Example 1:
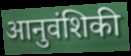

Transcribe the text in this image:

आनुवंशिकी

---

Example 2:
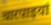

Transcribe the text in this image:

चारपाइयां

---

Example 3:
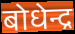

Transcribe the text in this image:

बोधेन्द्र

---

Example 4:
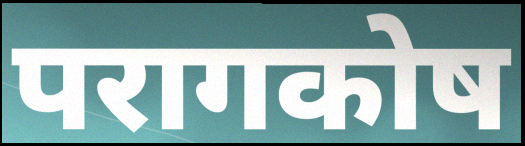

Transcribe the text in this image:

परागकोष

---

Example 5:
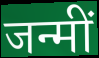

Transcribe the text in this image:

जन्मीं